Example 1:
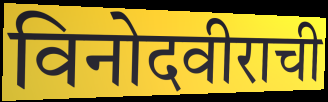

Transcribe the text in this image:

विनोदवीराची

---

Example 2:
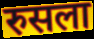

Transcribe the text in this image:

रुसला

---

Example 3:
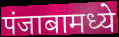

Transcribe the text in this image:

पंजाबामध्ये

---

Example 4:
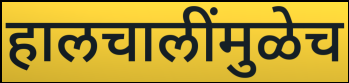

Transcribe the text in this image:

हालचालींमुळेच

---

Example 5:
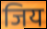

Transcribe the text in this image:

जिय